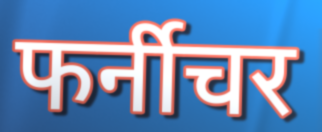
फर्नीचर